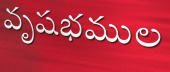
వృషభముల